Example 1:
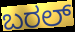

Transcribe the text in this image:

ಬರಲ್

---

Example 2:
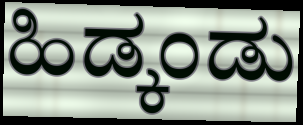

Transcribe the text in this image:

ಹಿಡ್ಕಂಡು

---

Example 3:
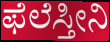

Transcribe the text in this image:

ಫೆಲೆಸ್ತೀನಿ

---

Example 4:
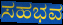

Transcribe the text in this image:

ಸಹಭವ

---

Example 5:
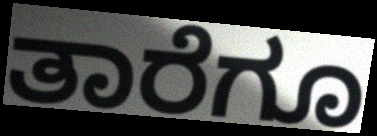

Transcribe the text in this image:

ತಾರೆಗೂ